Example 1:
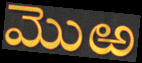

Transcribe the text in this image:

మొఱ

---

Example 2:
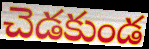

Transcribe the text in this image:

చెడకుండ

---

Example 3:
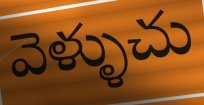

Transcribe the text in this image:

వెళ్ళుచు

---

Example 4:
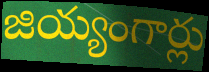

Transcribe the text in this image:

జియ్యంగార్లు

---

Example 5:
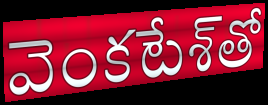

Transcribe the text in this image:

వెంకటేశ్‌తో